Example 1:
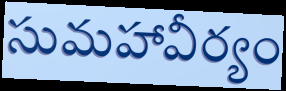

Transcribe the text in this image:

సుమహావీర్యం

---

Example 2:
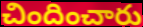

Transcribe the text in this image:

చిందించారు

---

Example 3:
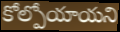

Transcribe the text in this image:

కోల్పోయాయని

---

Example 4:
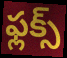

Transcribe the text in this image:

ఫ్లక్స్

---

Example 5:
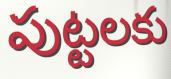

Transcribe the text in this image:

పుట్టలకు